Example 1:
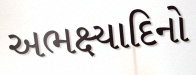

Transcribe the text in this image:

અભક્ષ્યાદિનો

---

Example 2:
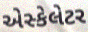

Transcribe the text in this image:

એસ્કેલેટર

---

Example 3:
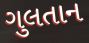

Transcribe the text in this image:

ગુલતાન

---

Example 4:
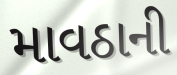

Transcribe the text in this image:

માવઠાની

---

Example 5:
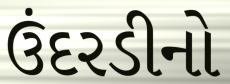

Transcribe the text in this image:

ઉંદરડીનો